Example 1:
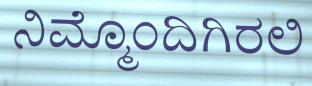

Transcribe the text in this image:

ನಿಮ್ಮೊಂದಿಗಿರಲಿ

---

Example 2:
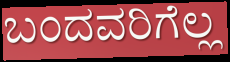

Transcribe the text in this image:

ಬಂದವರಿಗೆಲ್ಲ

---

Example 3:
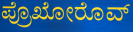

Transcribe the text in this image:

ಪ್ರೊಖೋರೊವ್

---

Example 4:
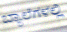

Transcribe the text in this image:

ಬ್ಯಾಲೆಗಳಲ್ಲಿ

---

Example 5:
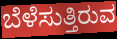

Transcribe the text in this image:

ಬೆಳೆಸುತ್ತಿರುವ